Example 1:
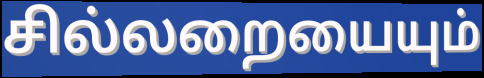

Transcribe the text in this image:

சில்லறையையும்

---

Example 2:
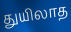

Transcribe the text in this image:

துயிலாத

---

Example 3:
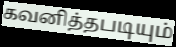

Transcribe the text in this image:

கவனித்தபடியும்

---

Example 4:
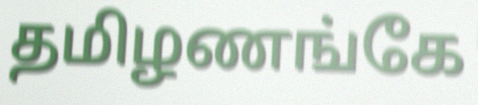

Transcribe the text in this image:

தமிழணங்கே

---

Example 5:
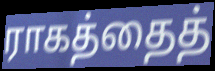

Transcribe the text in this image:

ராகத்தைத்